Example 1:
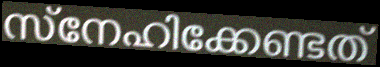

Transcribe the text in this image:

സ്‌നേഹിക്കേണ്ടത്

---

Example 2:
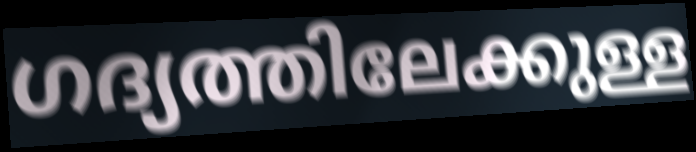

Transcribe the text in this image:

ഗദ്യത്തിലേക്കുള്ള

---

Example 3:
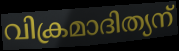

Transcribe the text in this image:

വിക്രമാദിത്യന്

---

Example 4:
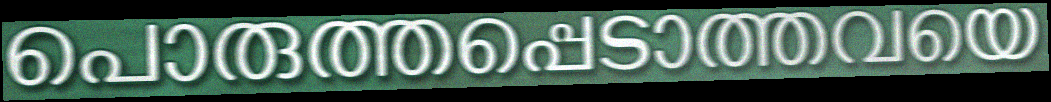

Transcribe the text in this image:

പൊരുത്തപ്പെടാത്തവയെ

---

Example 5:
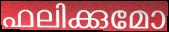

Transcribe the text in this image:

ഫലിക്കുമോ